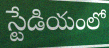
స్టేడియంలో